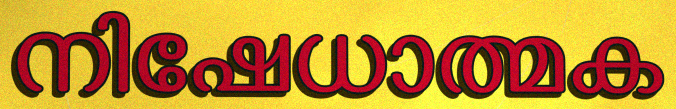
നിഷേധാത്മക